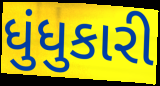
ધુંધુકારી